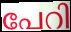
പേറി